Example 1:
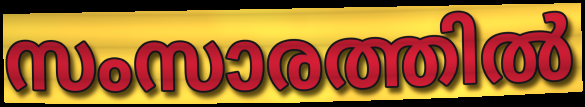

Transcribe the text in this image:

സംസാരത്തിൽ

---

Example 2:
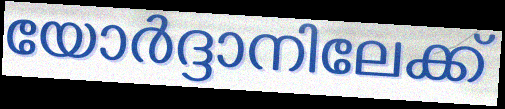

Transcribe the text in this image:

യോർദ്ദാനിലേക്ക്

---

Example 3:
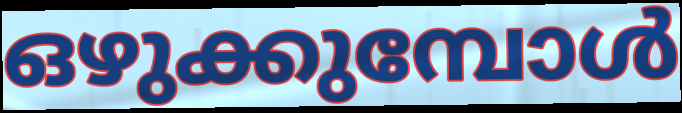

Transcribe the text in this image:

ഒഴുക്കുമ്പോൾ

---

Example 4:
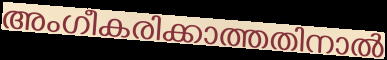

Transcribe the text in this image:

അംഗീകരിക്കാത്തതിനാൽ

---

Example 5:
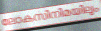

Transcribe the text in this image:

ലോകസിനിമയിലും